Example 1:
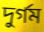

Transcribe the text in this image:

দুৰ্গম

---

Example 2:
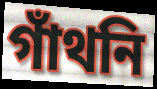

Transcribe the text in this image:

গাঁথনি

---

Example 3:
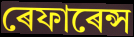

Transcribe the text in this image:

ৰেফাৰেন্স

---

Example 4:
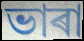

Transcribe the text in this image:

ভাৰা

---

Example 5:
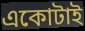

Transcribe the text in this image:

একোটাই